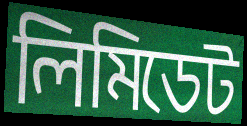
লিমিডেট